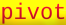
pivot